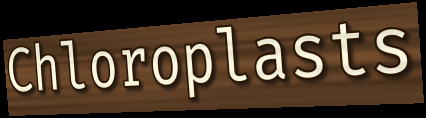
Chloroplasts